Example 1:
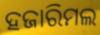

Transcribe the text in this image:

ହଜାରିମଲ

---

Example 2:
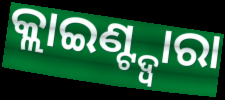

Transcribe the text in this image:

କ୍ଲାଇଣ୍ଟ୍ଦ୍ୱାରା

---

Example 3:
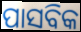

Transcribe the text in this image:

ପାସବିକ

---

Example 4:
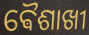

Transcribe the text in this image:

ଵୈଶାଖୀ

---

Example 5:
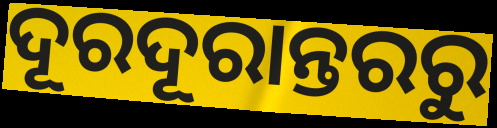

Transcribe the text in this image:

ଦୂରଦୂରାନ୍ତରରୁ